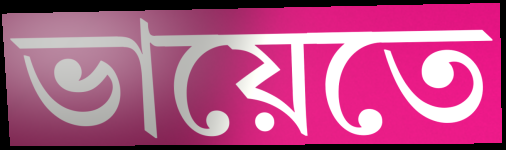
ভায়েতে